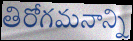
తిరోగమనాన్ని